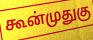
கூன்முதுகு